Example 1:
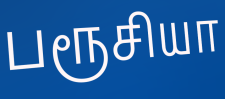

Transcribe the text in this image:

பரூசியா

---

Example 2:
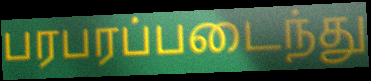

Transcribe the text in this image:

பரபரப்படைந்து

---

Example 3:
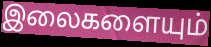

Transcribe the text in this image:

இலைகளையும்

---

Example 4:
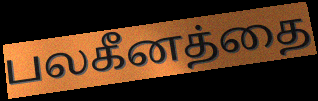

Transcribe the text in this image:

பலகீனத்தை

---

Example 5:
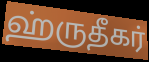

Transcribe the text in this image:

ஹ்ருதீகர்